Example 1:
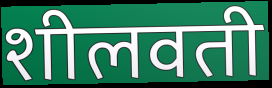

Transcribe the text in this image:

शीलवती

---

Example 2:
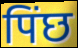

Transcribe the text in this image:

पिंछ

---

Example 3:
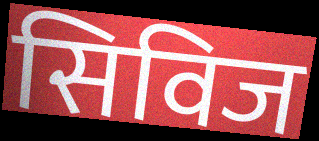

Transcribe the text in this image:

सिविज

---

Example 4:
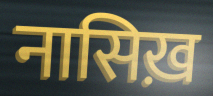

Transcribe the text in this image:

नासिख़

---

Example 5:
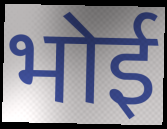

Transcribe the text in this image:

भोई